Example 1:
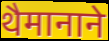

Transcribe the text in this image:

थैमानाने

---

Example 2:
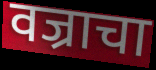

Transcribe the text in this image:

वज्राचा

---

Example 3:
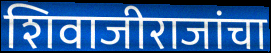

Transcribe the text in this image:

शिवाजीराजांचा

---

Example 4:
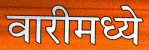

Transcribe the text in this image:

वारीमध्ये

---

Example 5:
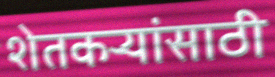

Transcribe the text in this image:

शेतकर्‍यांसाठी